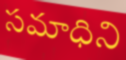
సమాధిని